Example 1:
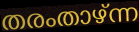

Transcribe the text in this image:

തരംതാഴ്ന്ന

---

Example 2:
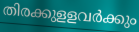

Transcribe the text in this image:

തിരക്കുളളവർക്കും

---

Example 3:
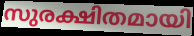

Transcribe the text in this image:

സുരക്ഷിതമായി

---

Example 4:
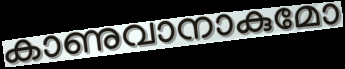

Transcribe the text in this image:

കാണുവാനാകുമോ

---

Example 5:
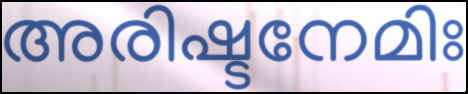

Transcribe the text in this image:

അരിഷ്ടനേമിഃ